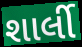
શાર્લી